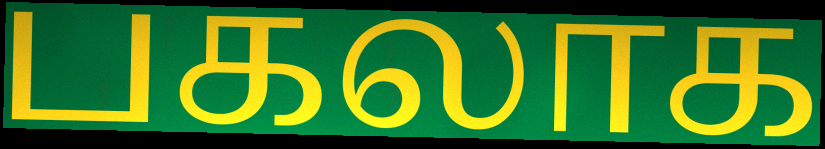
பகலாக